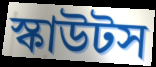
স্কাউটস